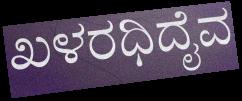
ಖಳರಧಿದೈವ